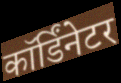
कॉर्डिंनेटर